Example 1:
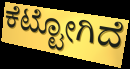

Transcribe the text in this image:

ಕೆಟ್ಟೋಗಿದೆ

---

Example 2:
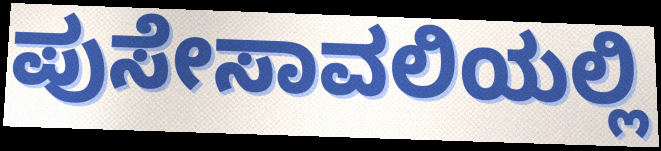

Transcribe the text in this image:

ಪುಸೇಸಾವಲಿಯಲ್ಲಿ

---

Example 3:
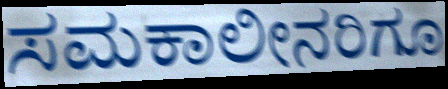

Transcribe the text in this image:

ಸಮಕಾಲೀನರಿಗೂ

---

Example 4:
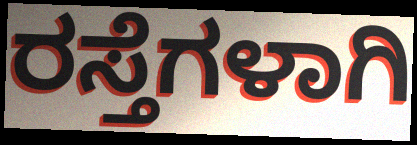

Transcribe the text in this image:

ರಸ್ತೆಗಳಾಗಿ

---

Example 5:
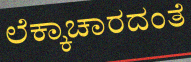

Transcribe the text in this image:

ಲೆಕ್ಕಾಚಾರದಂತೆ